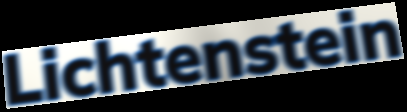
Lichtenstein